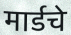
मार्डचे